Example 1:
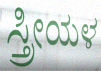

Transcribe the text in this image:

ಸ್ತ್ರೀಯಳ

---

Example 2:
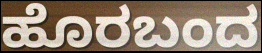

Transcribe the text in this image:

ಹೊರಬಂದ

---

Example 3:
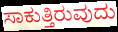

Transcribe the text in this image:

ಸಾಕುತ್ತಿರುವುದು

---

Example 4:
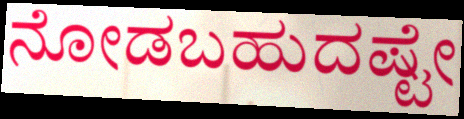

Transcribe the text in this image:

ನೋಡಬಹುದಷ್ಟೇ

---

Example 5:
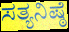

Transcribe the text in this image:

ಸತ್ಯನಿಷ್ಠೆ